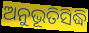
ଅନୁଭୂତିସିଦ୍ଧି